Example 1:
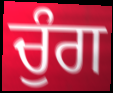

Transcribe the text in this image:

ਚੁੰਗ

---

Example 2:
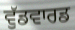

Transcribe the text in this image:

ਵੁੱਡਵਾਰਡ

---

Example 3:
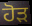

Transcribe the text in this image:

ਹੋੜ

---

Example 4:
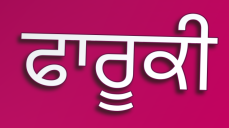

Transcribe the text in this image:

ਫਾਰੂਕੀ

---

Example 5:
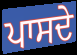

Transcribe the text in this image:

ਪਾਸਦੇ